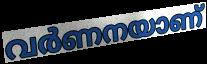
വർണനയാണ്